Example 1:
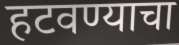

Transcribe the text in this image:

हटवण्याचा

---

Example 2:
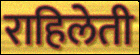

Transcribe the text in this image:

राहिलेती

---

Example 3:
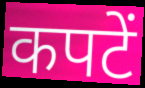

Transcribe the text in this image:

कपटें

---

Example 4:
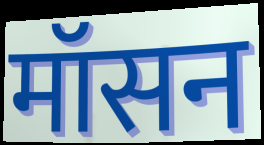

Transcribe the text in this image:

मॉसन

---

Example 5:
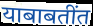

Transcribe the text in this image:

याबाबतींत